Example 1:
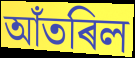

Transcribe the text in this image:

আঁতৰিল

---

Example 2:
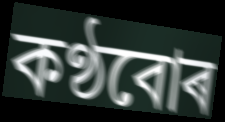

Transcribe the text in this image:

কণ্ঠবোৰ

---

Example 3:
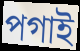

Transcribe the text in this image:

পগাই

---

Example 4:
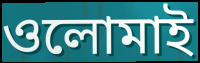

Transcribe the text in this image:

ওলোমাই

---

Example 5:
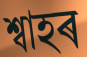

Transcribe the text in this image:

শ্বাহৰ